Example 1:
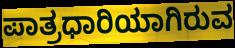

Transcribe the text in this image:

ಪಾತ್ರಧಾರಿಯಾಗಿರುವ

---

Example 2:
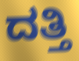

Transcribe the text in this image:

ದತ್ತಿ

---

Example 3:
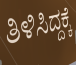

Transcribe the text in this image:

ತಿಳಿಸಿದ್ದಕ್ಕೆ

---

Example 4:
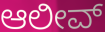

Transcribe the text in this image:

ಆಲೀವ್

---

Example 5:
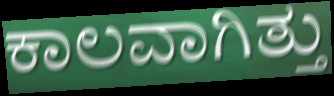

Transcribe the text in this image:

ಕಾಲವಾಗಿತ್ತು